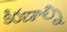
కిరణాల్ని